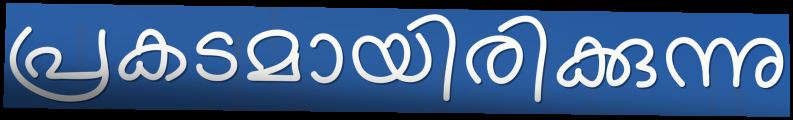
പ്രകടമായിരിക്കുന്നു